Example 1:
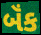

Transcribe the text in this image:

બૅંક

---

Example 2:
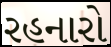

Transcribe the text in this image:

રહનારો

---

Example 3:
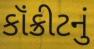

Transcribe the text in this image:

કૉંક્રીટનું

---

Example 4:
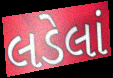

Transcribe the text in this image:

લડેલાં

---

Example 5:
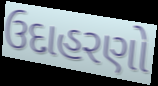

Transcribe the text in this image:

ઉદાહરણો